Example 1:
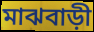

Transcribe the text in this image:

মাঝবাড়ী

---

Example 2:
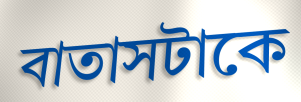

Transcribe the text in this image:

বাতাসটাকে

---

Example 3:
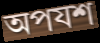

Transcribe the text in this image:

অপযশ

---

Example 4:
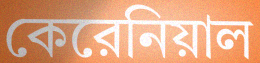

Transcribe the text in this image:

কেরেনিয়াল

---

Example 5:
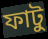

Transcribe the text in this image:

ফাটু